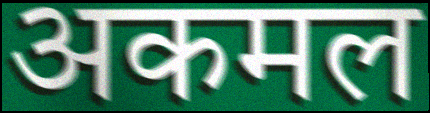
अकमल